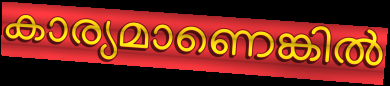
കാര്യമാണെങ്കിൽ